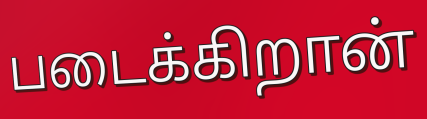
படைக்கிறான்